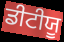
ਡੀਟੀਯੂ